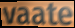
vaate